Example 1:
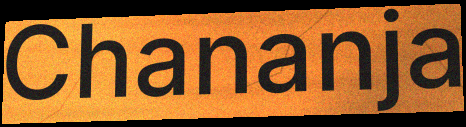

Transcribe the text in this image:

Chananja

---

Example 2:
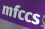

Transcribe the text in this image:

mfccs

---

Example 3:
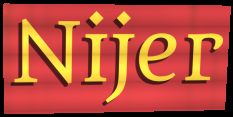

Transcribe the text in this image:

Nijer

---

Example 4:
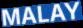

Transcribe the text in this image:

MALAY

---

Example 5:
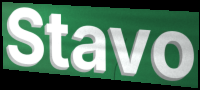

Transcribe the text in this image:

Stavo